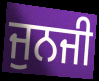
ਜੁਨਜੀ